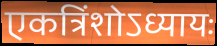
एकत्रिंशोऽध्यायः